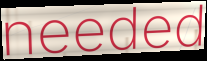
needed